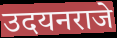
उदयनराजे